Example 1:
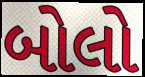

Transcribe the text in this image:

બોલો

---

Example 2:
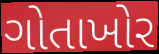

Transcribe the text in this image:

ગોતાખોર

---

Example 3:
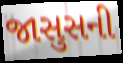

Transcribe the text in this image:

જાસુસની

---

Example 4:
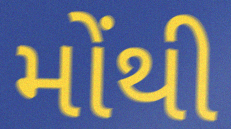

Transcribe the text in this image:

મોંથી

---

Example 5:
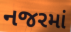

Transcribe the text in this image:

નજરમાં